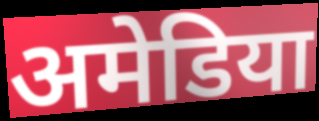
अमेडिया